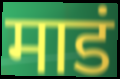
माडं